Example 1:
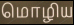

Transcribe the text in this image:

மொழிய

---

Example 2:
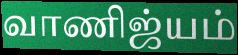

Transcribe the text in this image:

வாணிஜ்யம்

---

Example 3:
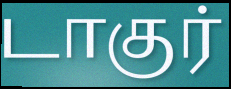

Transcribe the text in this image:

டாகுர்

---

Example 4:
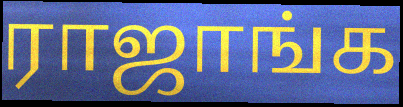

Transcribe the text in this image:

ராஜாங்க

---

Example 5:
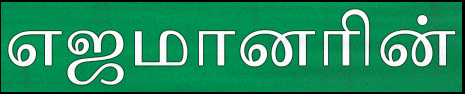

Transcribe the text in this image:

எஜமானரின்